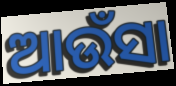
ଆଉଁସା